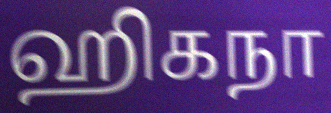
ஹிகநா